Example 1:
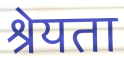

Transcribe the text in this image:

श्रेयता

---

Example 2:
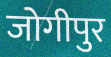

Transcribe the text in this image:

जोगीपुर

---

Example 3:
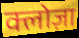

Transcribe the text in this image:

क्लोज़ा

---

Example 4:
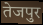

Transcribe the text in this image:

तेजपुर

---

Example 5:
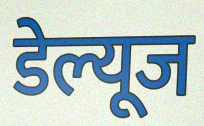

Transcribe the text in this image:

डेल्यूज